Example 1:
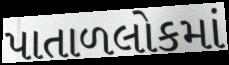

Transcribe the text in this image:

પાતાળલોકમાં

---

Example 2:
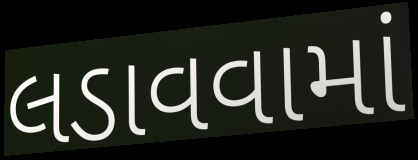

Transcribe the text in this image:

લડાવવામાં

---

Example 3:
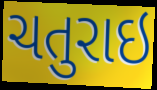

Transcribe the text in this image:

ચતુરાઇ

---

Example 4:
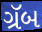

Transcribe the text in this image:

ગ્રૅબ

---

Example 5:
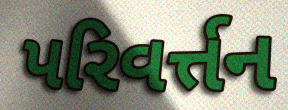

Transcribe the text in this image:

પરિવર્ત્તન